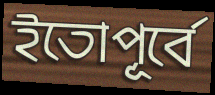
ইতোপূর্বে